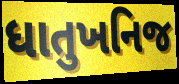
ધાતુખનિજ